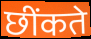
छींकते